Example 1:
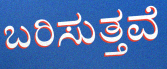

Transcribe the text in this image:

ಬರಿಸುತ್ತವೆ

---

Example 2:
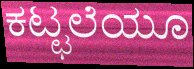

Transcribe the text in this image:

ಕಟ್ಟಲೆಯೂ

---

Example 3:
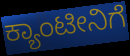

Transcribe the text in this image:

ಕ್ಯಾಂಟೀನಿಗೆ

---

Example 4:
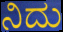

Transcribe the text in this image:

ನಿದು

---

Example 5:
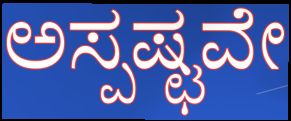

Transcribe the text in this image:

ಅಸ್ಪಷ್ಟವೇ